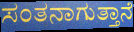
ಸಂತನಾಗುತ್ತಾನೆ